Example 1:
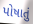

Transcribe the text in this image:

પોષાતું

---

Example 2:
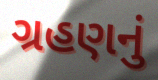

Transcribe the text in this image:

ગ્રહણનું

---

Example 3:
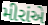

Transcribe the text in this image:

મીરાંએ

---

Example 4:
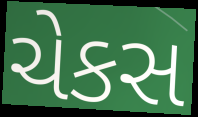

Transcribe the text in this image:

ચેકસ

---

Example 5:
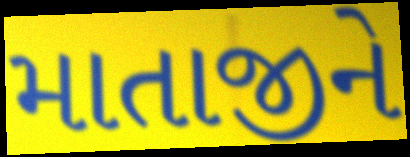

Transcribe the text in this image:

માતાજીને